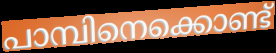
പാമ്പിനെക്കൊണ്ട്